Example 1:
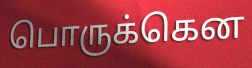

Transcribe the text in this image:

பொருக்கென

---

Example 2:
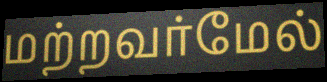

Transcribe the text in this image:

மற்றவர்மேல்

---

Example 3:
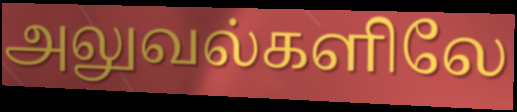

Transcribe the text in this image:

அலுவல்களிலே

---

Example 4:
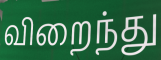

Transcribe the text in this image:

விறைந்து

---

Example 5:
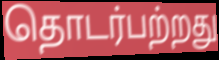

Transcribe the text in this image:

தொடர்பற்றது